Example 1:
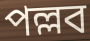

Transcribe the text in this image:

পল্লব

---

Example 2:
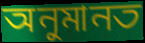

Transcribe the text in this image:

অনুমানত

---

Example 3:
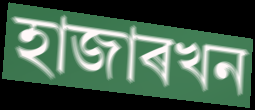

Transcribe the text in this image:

হাজাৰখন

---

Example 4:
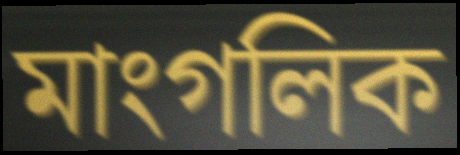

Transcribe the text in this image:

মাংগলিক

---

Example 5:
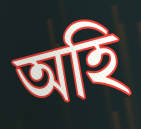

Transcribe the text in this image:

অহি